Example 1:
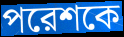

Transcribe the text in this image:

পরেশকে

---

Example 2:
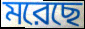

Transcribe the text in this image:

মরেছে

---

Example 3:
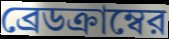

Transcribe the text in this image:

ব্রেডক্রাম্বের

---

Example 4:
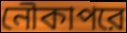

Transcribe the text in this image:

নৌকাপরে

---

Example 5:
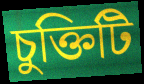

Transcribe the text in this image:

চুক্তিটি